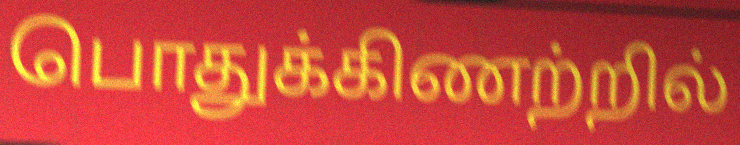
பொதுக்கிணற்றில்